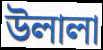
উলালা